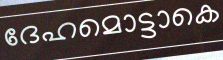
ദേഹമൊട്ടാകെ